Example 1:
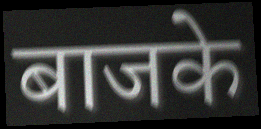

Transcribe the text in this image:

बाजके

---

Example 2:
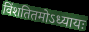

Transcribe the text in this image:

विंशतितमोऽध्यायः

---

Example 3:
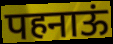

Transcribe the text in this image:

पहनाऊं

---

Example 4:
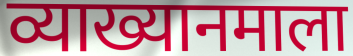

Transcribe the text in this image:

व्याख्यानमाला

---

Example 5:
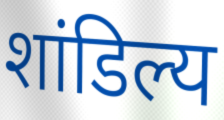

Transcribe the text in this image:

शांडिल्य